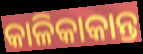
କାଳିକାକାନ୍ତ